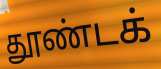
தூண்டக்